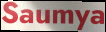
Saumya